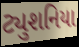
ટ્યુશનિયા